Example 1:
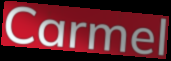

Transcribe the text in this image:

Carmel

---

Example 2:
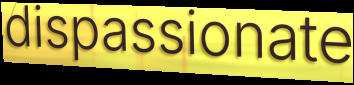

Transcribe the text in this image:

dispassionate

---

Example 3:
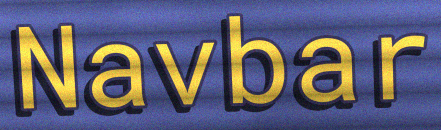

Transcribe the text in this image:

Navbar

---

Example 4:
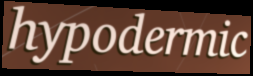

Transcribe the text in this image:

hypodermic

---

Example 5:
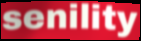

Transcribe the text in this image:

senility